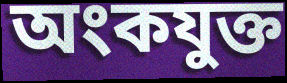
অংকযুক্ত